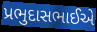
પ્રભુદાસભાઈએ